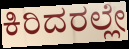
ಕಿರಿದರಲ್ಲೇ